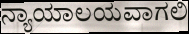
ನ್ಯಾಯಾಲಯವಾಗಲಿ